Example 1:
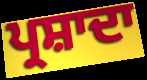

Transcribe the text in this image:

ਪ੍ਰਸ਼ਾਦਾ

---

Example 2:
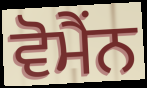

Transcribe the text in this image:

ਵੋਮੈਂਨ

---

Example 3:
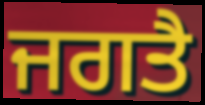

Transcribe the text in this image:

ਜਗਤੈ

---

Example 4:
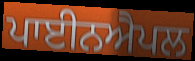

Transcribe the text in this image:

ਪਾਈਨਐਪਲ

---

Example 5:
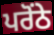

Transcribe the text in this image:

ਪਰੋਂਠੇ